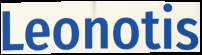
Leonotis